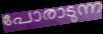
പോരാടുന്ന